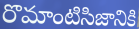
రొమాంటిసిజానికి